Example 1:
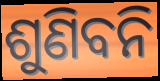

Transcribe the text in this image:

ଶୁଣିବନି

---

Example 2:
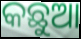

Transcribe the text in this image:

କଛୁଆ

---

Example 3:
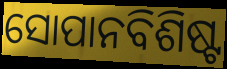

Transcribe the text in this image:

ସୋପାନବିଶିଷ୍ଟ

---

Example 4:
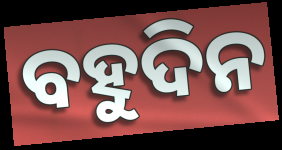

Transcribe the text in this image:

ବହୁଦିନ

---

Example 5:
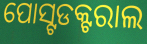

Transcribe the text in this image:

ପୋସ୍ଟଡକ୍ଟରାଲ